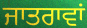
ਜਾਤਰਾਵਾਂ